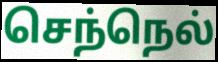
செந்நெல்